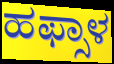
ಹಫ್ಸಾಳ